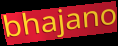
bhajano